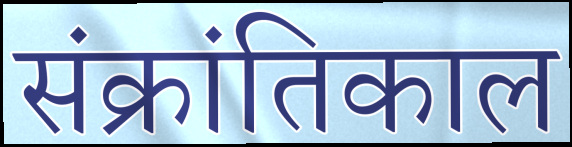
संक्रांतिकाल